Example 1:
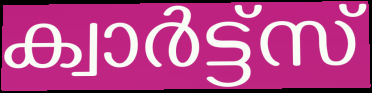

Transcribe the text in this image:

ക്വാർട്ട്സ്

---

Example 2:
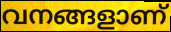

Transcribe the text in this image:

വനങ്ങളാണ്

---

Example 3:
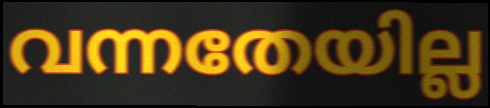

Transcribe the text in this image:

വന്നതേയില്ല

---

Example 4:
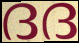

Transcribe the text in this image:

ദദ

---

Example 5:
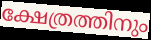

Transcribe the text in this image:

ക്ഷേത്രത്തിനും